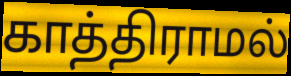
காத்திராமல்